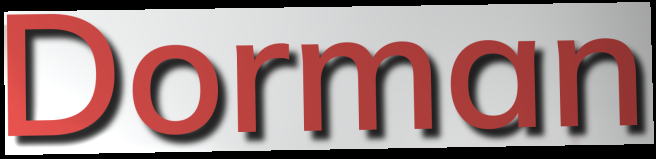
Dorman